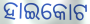
ହାଇକୋଟ